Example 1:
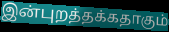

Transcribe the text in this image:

இன்புறத்தக்கதாகும்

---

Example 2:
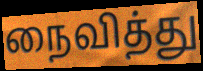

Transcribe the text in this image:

நைவித்து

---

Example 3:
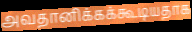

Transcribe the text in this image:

அவதானிக்கக்கூடியதாக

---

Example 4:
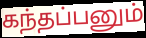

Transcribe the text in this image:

கந்தப்பனும்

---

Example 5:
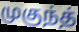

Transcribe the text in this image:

முகுந்த்